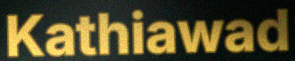
Kathiawad